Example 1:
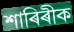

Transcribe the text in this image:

শাৰিৰীক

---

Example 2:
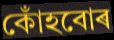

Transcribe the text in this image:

কোঁহবোৰ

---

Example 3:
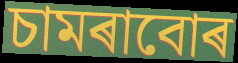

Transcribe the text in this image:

চামৰাবোৰ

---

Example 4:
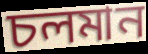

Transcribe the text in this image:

চলমান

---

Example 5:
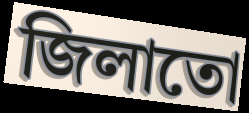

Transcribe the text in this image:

জিলাতো